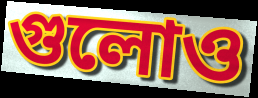
গুলোও